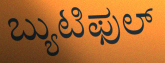
ಬ್ಯುಟಿಫುಲ್